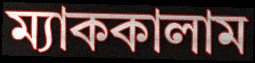
ম্যাককালাম